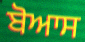
ਬੋਆਸ